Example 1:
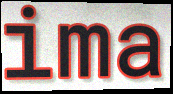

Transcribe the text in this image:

ima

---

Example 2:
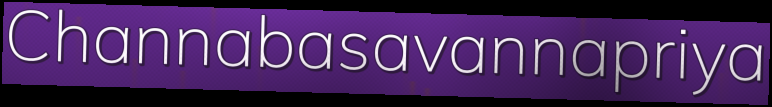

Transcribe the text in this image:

Channabasavannapriya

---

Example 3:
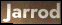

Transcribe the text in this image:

Jarrod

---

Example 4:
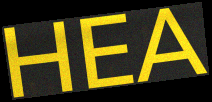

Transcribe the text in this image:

HEA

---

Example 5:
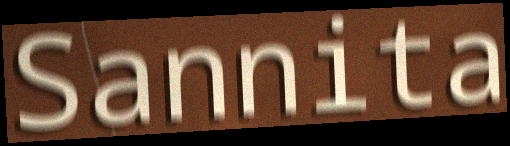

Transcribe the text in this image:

Sannita